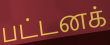
பட்டனக்